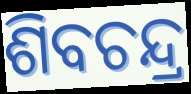
ଶିବଚନ୍ଦ୍ର